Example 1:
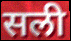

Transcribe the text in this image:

सली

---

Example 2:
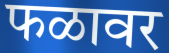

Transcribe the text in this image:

फळावर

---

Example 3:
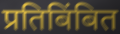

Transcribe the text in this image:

प्रतिबिंबित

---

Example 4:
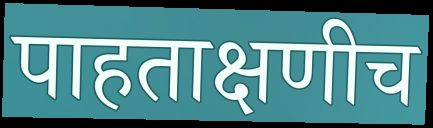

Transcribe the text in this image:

पाहताक्षणीच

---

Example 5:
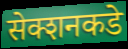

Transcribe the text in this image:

सेक्शनकडे